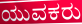
ಯುವಕರು